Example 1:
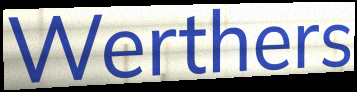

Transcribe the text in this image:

Werthers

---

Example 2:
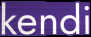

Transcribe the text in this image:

kendi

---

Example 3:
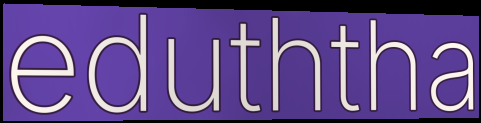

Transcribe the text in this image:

eduththa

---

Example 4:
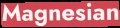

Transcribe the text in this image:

Magnesian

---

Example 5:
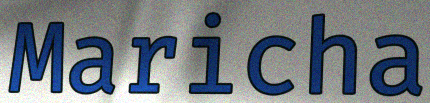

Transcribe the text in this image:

Maricha